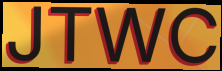
JTWC